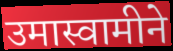
उमास्वामीने